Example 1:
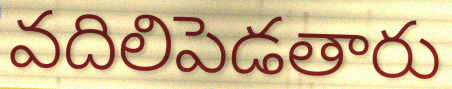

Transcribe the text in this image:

వదిలిపెడతారు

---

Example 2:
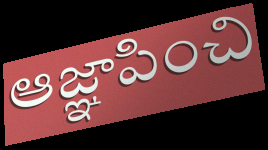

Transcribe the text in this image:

ఆజ్ఞాపించి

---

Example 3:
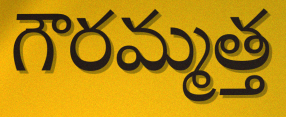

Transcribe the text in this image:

గౌరమ్మత్త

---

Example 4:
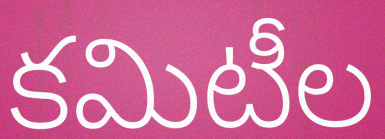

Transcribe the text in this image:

కమిటీల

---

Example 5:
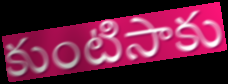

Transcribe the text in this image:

కుంటిసాకు